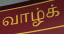
வாழ்க்